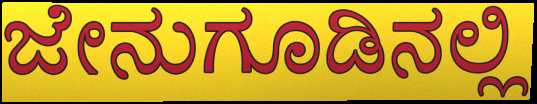
ಜೇನುಗೂಡಿನಲ್ಲಿ